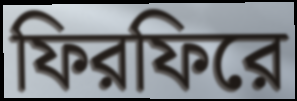
ফিরফিরে